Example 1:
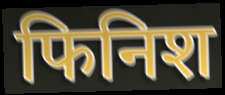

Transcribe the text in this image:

फिनिश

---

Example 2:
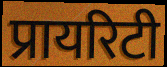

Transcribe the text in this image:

प्रायरिटी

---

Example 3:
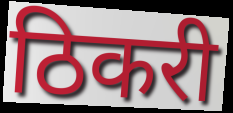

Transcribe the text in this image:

ठिकरी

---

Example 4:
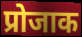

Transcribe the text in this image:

प्रोजाक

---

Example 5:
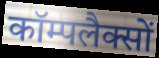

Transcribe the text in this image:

कॉम्पलैक्सों